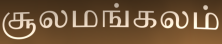
சூலமங்கலம்